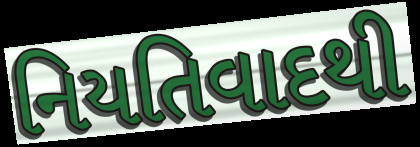
નિયતિવાદથી